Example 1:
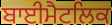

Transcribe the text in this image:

ਬਾਈਮੈਟਲਿਕ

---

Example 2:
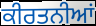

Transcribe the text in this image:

ਕੀਰਤਨੀਆਂ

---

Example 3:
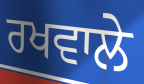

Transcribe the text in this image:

ਰਖਵਾਲੇ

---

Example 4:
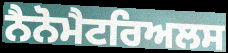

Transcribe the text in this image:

ਨੈਨੋਮੈਟਰਿਅਲਸ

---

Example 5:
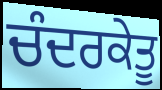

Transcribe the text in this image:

ਚੰਦਰਕੇਤੂ